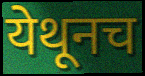
येथूनच